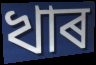
খাৰ